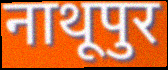
नाथूपुर